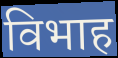
विभाह